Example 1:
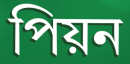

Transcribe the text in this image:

পিয়ন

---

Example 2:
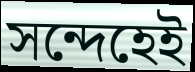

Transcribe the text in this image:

সন্দেহেই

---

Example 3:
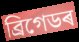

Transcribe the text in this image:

ব্ৰিগেডৰ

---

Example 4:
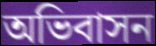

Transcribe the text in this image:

অভিবাসন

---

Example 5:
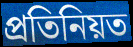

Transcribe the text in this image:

প্ৰতিনিয়ত